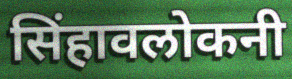
सिंहावलोकनी